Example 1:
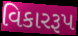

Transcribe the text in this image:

વિકારરૂપ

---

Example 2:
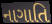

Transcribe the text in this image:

નાગાતિ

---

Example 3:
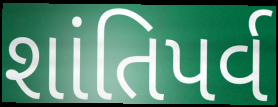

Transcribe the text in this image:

શાંતિપર્વ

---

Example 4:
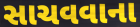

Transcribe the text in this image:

સાચવવાના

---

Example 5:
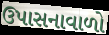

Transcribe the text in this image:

ઉપાસનાવાળો